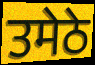
उमेठे